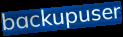
backupuser